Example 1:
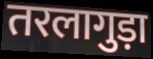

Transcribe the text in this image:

तरलागुड़ा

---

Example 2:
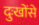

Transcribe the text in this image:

दुःखोंसे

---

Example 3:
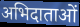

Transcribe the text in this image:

अभिदाताओं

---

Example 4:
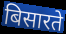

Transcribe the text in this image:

बिसारते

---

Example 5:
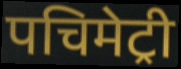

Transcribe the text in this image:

पचिमेट्री